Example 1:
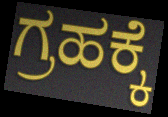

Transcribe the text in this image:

ಗ್ರಹಕ್ಕೆ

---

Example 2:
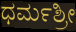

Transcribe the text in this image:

ಧರ್ಮಶ್ರೀ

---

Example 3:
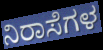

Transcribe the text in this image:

ನಿರಾಸೆಗಳ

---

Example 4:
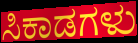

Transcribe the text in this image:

ಸಿಕಾಡಗಳು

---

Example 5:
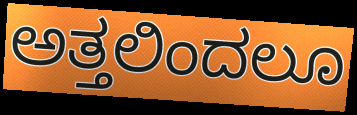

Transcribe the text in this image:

ಅತ್ತಲಿಂದಲೂ